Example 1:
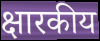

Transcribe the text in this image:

क्षारकीय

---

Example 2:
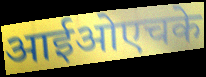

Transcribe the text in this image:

आईओएचके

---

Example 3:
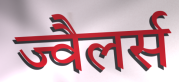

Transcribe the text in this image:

ज्वैलर्स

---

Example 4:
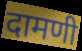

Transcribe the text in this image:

दामणी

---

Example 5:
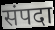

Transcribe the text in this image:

संपदा